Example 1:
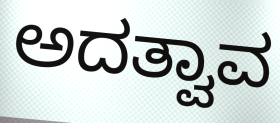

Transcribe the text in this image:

ಅದತ್ವಾವ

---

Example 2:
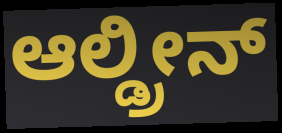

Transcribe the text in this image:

ಆಲ್ಡ್ರೀನ್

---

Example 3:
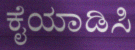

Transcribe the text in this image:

ಕೈಯಾಡಿಸಿ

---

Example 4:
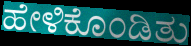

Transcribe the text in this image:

ಹೇಳಿಕೊಂಡಿತು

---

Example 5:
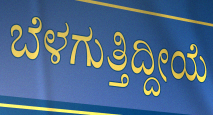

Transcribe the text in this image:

ಬೆಳಗುತ್ತಿದ್ದೀಯೆ